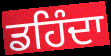
ਡਹਿੰਦਾ